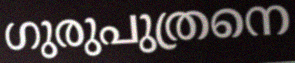
ഗുരുപുത്രനെ